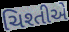
ચિશ્તીએ